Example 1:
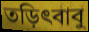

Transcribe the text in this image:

তড়িৎবাবু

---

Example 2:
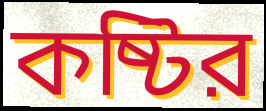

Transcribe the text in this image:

কষ্টির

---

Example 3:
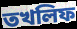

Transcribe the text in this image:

তখলিফ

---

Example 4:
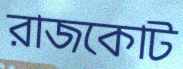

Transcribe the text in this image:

রাজকোট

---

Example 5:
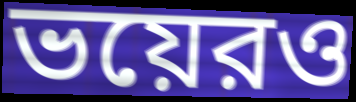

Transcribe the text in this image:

ভয়েরও